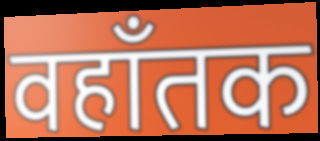
वहाँतक